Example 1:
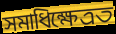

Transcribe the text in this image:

সমাধিক্ষেত্ৰত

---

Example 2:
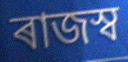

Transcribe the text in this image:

ৰাজস্ব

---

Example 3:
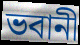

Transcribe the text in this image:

ভবানী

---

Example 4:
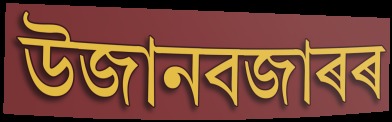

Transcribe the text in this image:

উজানবজাৰৰ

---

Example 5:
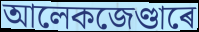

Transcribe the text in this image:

আলেকজেণ্ডাৰে